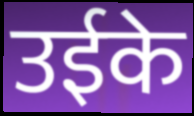
उईके